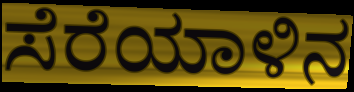
ಸೆರೆಯಾಳಿನ